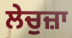
ਲੇਚੁਜ਼ਾ